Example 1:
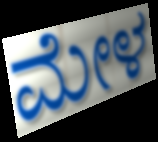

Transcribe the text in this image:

ಮೇಳ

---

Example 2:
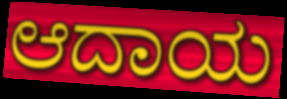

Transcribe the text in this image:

ಆದಾಯ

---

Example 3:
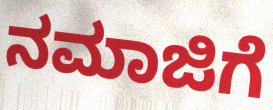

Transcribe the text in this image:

ನಮಾಜಿಗೆ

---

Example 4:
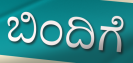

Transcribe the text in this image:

ಬಿಂದಿಗೆ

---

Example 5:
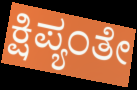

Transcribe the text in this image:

ಕ್ಷಿಪ್ಯಂತೇ